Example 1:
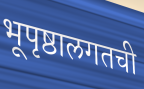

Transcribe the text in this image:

भूपृष्ठालगतची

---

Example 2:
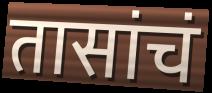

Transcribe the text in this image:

तासांचं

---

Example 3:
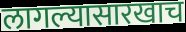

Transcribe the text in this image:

लागल्यासारखाच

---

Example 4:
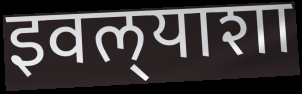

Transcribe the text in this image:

इवल्याशा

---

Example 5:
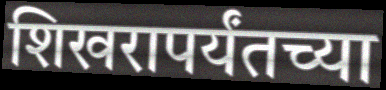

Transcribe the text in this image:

शिखरापर्यंतच्या